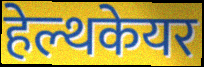
हेल्थकेयर